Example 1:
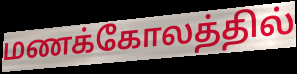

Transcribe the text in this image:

மணக்கோலத்தில்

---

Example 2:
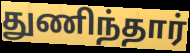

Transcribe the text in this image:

துணிந்தார்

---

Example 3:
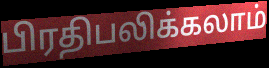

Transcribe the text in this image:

பிரதிபலிக்கலாம்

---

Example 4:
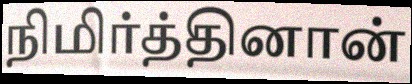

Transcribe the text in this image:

நிமிர்த்தினான்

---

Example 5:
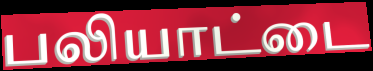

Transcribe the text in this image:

பலியாட்டை